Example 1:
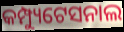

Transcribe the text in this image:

କମ୍ପ୍ୟୁଟେସନାଲ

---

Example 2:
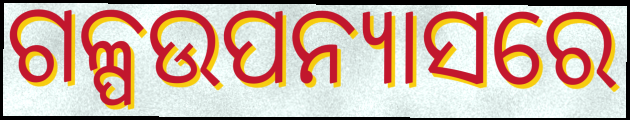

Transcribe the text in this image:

ଗଳ୍ପଉପନ୍ୟାସରେ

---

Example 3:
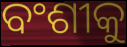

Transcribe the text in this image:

ବଂଶୀକୁ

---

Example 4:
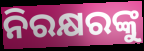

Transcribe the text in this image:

ନିରକ୍ଷରଙ୍କୁ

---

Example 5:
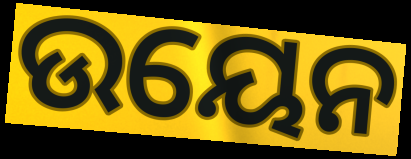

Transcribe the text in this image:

ଉୟେନ